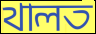
থালত